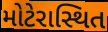
મોટેરાસ્થિત